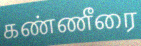
கண்ணீரை